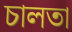
চালতা